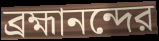
ব্রহ্মানন্দের